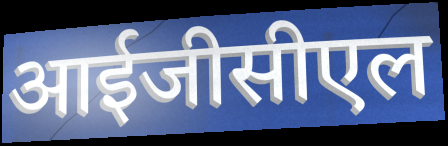
आईजीसीएल